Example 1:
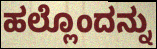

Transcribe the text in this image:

ಹಲ್ಲೊಂದನ್ನು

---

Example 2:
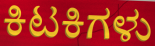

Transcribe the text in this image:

ಕಿಟಕಿಗಳು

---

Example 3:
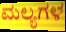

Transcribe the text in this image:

ಮಲ್ಯಗಳ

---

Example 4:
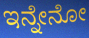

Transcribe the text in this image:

ಇನ್ನೇನೋ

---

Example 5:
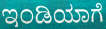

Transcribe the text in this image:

ಇಂಡಿಯಾಗೆ